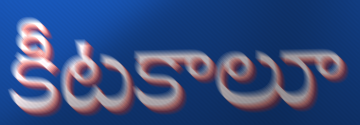
కీటకాలూ